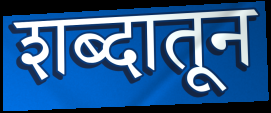
शब्दातून